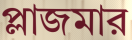
প্লাজমার